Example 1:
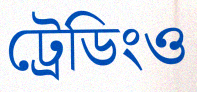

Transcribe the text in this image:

ট্রেডিংও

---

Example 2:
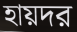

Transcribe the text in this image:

হায়দর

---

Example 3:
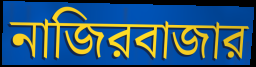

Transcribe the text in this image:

নাজিরবাজার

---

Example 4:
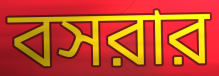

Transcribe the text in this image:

বসরার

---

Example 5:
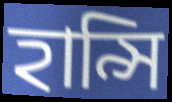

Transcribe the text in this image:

হান্সি